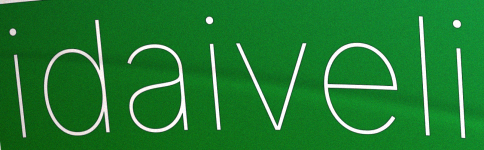
idaiveli